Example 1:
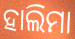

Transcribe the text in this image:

ହାଲିମା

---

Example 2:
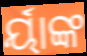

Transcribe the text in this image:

ର୍ୟାଙ୍କ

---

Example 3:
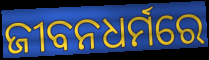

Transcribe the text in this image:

ଜୀବନଧର୍ମରେ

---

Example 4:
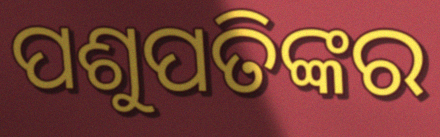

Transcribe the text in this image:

ପଶୁପତିଙ୍କର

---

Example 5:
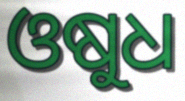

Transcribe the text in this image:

ଓଷୁଧ